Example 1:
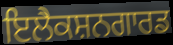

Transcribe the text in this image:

ਇਲੈਕਸ਼ਨਗਾਰਡ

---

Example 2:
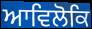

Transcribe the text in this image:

ਆਵਿਲੋਕਿ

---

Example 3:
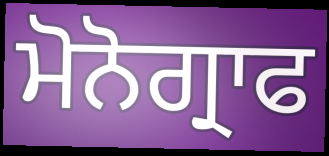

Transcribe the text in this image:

ਮੋਨੋਗ੍ਰਾਫ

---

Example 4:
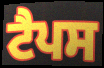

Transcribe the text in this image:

ਟੈਪਸ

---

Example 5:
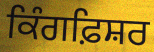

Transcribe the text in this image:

ਕਿੰਗਫ਼ਿਸ਼ਰ